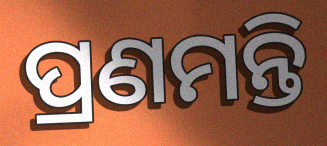
ପ୍ରଣମନ୍ତି